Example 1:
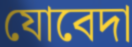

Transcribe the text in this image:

যোবেদা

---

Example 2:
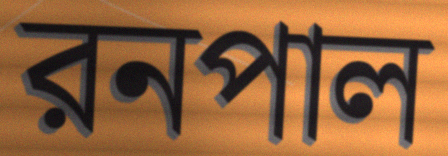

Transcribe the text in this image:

রনপাল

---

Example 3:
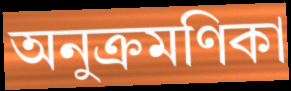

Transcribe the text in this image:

অনুক্রমণিকা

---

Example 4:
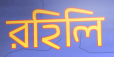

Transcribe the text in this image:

রহিলি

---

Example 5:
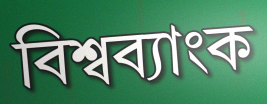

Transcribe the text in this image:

বিশ্বব্যাংক